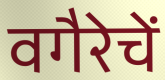
वगैरेचें